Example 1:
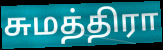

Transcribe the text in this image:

சுமத்திரா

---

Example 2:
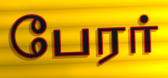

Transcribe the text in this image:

பேரர்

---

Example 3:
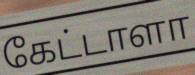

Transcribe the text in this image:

கேட்டாளா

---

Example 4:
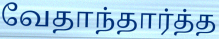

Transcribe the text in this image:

வேதாந்தார்த்த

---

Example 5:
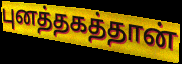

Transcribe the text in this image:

புனத்தகத்தான்